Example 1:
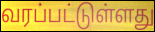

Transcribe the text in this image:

வரப்பட்டுள்ளது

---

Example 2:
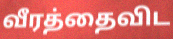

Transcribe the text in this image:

வீரத்தைவிட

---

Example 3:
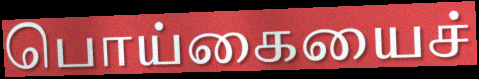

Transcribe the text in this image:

பொய்கையைச்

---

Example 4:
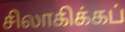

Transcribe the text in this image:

சிலாகிக்கப்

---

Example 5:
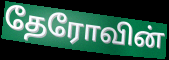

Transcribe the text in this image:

தேரோவின்